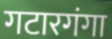
गटारगंगा